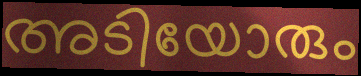
അടിയോരും